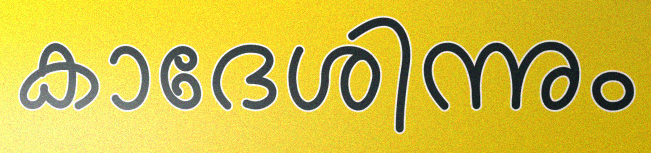
കാദേശിന്നും